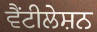
ਵੈਂਟੀਲੇਸ਼ਨ